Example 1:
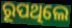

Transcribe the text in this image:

ରୂପଥିଲେ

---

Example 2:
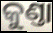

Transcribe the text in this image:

କୁଣ୍ତା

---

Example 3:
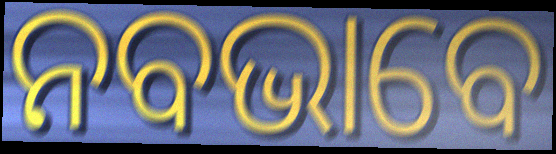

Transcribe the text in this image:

ନବଭାବେ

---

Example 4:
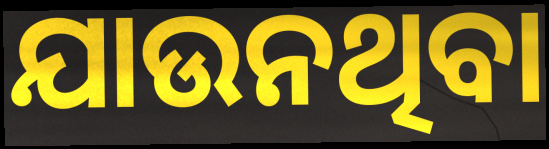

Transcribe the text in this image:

ଯାଉନଥିବା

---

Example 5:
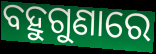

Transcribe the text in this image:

ବହୁଗୁଣାରେ